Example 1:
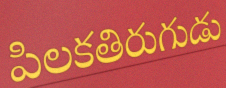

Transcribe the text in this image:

పిలకతిరుగుడు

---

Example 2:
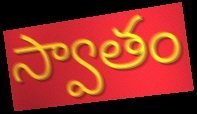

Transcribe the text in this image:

స్వాతం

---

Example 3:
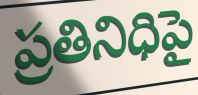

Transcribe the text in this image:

ప్రతినిధిపై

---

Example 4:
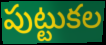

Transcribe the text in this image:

పుట్టుకల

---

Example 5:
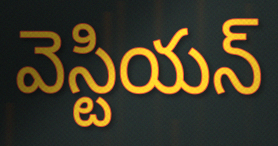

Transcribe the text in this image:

వెస్టియన్